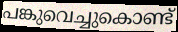
പങ്കുവെച്ചുകൊണ്ട്